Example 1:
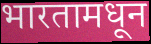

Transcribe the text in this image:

भारतामधून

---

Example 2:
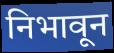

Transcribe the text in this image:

निभावून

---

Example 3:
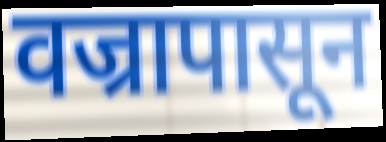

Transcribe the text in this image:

वज्रापासून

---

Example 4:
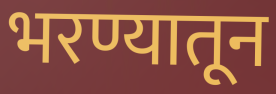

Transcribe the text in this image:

भरण्यातून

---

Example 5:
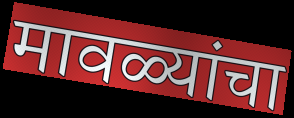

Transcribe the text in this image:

मावळ्यांचा